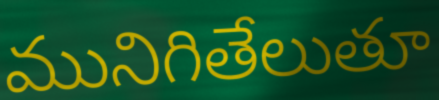
మునిగితేలుతూ